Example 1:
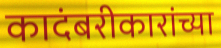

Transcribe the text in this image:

कादंबरीकारांच्या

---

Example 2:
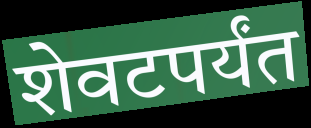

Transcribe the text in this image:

शेवटपर्यंत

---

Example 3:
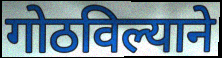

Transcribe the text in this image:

गोठविल्याने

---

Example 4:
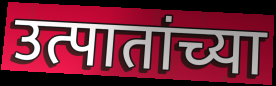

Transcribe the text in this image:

उत्पातांच्या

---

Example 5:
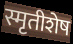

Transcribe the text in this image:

स्मृतीशेष